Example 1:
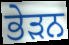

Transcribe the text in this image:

ਭੇੜਨ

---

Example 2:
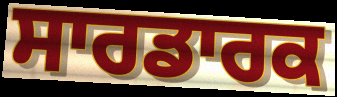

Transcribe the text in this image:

ਸਾਰਡਾਰਕ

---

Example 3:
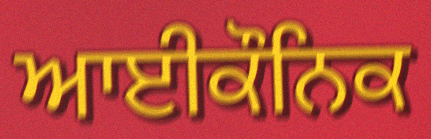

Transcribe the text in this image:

ਆਈਕੌਨਿਕ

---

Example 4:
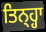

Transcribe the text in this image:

ਤਿਨ੍ਹ੍ਹਾ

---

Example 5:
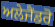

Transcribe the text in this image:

ਅਲੇਜੈਂਡਰੋ